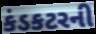
કંડકટરની